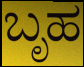
ಬೃಹ